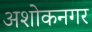
अशोकनगर